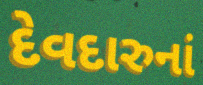
દેવદારુનાં